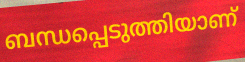
ബന്ധപ്പെടുത്തിയാണ്